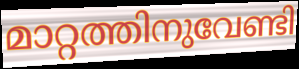
മാറ്റത്തിനുവേണ്ടി